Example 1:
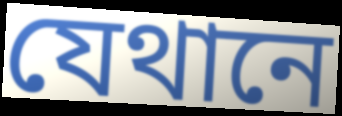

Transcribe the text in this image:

যেথানে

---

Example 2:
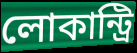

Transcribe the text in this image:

লোকান্ট্রি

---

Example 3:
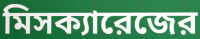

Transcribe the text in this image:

মিসক্যারেজের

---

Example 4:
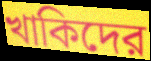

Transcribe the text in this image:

খাকিদের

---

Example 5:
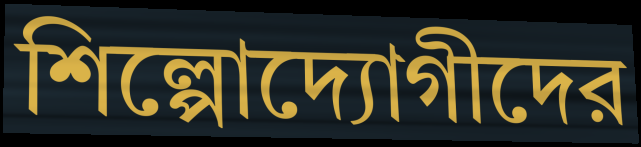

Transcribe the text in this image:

শিল্পোদ্যোগীদের